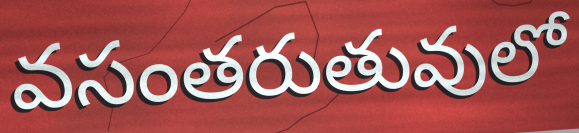
వసంతరుతువులో